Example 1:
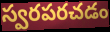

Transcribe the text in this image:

స్వరపరచడం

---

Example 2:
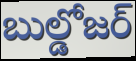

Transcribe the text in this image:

బుల్డోజర్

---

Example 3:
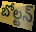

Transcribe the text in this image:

బోల్టన్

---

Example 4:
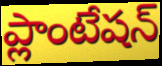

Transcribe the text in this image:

ప్లాంటేషన్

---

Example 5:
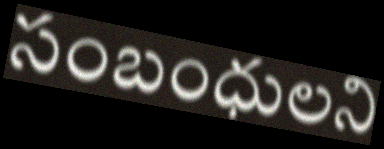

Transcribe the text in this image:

సంబంధులని